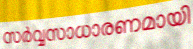
സർവ്വസാധാരണമായി